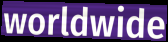
worldwide